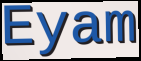
Eyam